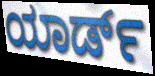
ಯಾರ್ಡ್